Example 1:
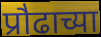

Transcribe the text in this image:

प्रौढाच्या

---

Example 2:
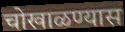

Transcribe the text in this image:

चोखाळण्यास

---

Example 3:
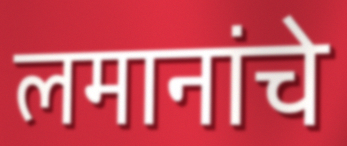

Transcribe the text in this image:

लमानांचे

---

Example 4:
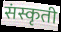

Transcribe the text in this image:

संस्कृती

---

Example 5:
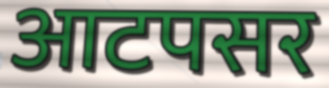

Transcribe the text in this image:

आटपसर